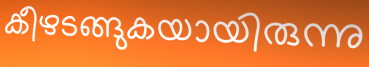
കീഴടങ്ങുകയായിരുന്നു